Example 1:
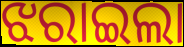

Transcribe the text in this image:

ଝରାଇଲା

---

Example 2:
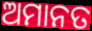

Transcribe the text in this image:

ଅମାନତ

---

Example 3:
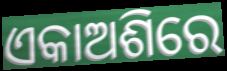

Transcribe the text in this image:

ଏକାଅଶିରେ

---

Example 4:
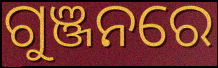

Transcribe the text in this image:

ଗୁଞ୍ଜନରେ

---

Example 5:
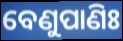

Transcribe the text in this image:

ବେଣୁପାଣିଃ